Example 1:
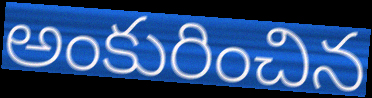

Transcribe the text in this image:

అంకురించిన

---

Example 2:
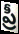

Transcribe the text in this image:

ప్రీ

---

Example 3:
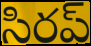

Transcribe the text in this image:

సిరప్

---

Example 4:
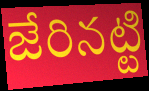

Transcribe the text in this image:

జేరినట్టి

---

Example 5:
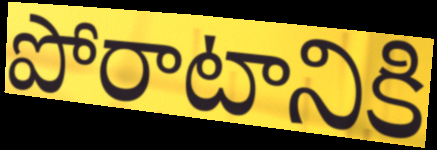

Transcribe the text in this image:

పోరాటానికి